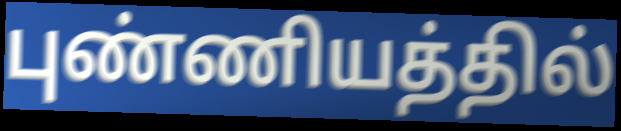
புண்ணியத்தில்